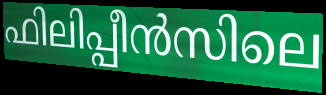
ഫിലിപ്പീൻസിലെ